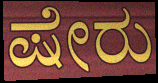
ಷೇರು